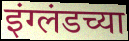
इंग्‍लंडच्या